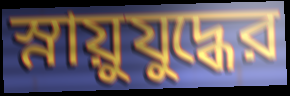
স্নায়ুযুদ্ধের